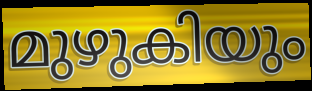
മുഴുകിയും